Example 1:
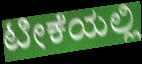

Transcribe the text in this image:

ಟೀಕೆಯಲ್ಲಿ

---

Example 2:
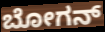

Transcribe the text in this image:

ಬೋಗನ್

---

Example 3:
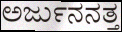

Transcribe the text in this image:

ಅರ್ಜುನನತ್ತ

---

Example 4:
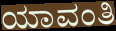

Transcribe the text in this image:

ಯಾವಂತಿ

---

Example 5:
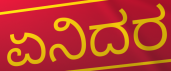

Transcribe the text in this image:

ಏನಿದರ